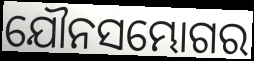
ଯୌନସମ୍ଭୋଗର